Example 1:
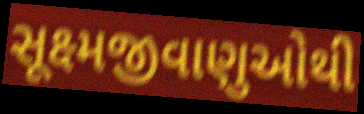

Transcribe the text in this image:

સૂક્ષ્મજીવાણુઓથી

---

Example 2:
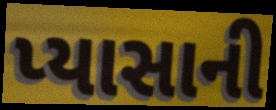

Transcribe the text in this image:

પ્યાસાની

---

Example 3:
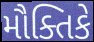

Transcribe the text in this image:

મૌક્તિકે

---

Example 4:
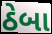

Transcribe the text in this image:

ઠેબા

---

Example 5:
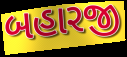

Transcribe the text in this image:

બહારજી